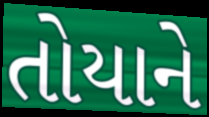
તોયાને